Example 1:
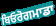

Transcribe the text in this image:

ਬਿਓਰੋਗਮਾਡਾ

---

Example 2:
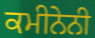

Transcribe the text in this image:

ਕਮੀਨੇਨੀ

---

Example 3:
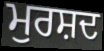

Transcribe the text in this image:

ਮੁਰਸ਼ਦ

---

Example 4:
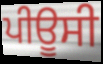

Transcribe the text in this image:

ਪੀਊਸੀ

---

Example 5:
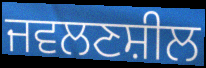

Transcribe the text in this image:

ਜਵਲਣਸ਼ੀਲ